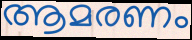
ആമരണം